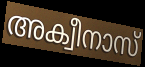
അക്വീനാസ്